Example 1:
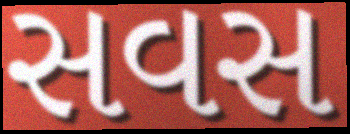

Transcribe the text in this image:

સવસ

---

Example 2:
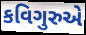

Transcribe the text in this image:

કવિગુરુએ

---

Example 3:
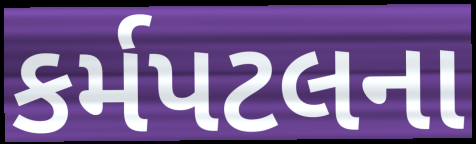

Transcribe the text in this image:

કર્મપટલના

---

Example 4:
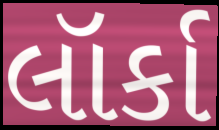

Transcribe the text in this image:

લૉર્કા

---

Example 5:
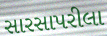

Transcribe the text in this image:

સારસાપરીલા